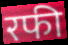
रफी